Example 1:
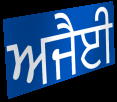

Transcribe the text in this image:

ਅਜੈਈ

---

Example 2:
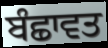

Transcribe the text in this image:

ਬੰਛਾਵਤ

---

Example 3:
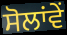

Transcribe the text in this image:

ਸੋਲਾਂਵੇਂ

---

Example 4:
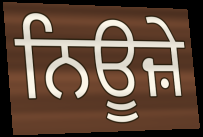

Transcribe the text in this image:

ਨਿਊਜ਼ੇ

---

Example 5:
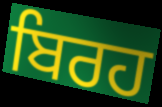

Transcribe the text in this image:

ਬਿਰਹ